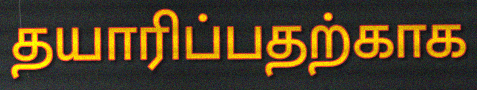
தயாரிப்பதற்காக